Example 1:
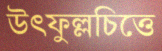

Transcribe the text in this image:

উৎফুল্লচিত্তে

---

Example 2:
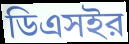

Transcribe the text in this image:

ডিএসইর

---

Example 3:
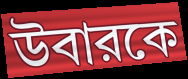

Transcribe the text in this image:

উবারকে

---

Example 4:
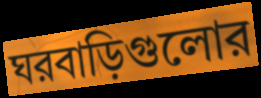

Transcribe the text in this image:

ঘরবাড়িগুলোর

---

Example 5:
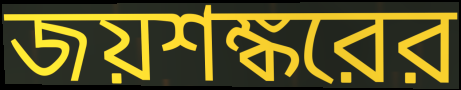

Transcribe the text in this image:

জয়শঙ্করের